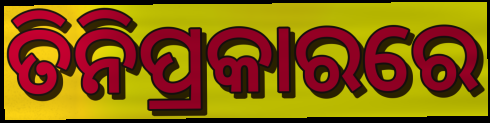
ତିନିପ୍ରକାରରେ